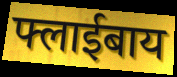
फ्लाईबाय